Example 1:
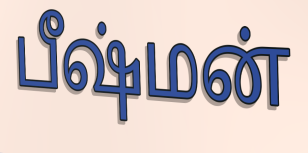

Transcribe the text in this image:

பீஷ்மன்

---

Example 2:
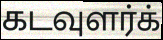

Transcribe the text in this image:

கடவுளர்க்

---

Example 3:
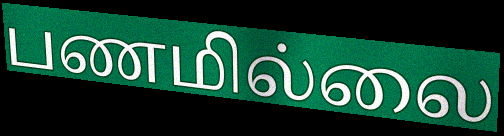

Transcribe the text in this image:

பணமில்லை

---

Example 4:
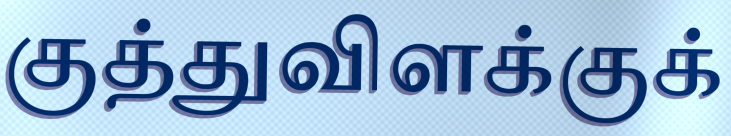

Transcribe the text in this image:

குத்துவிளக்குக்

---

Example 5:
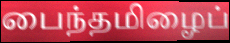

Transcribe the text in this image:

பைந்தமிழைப்